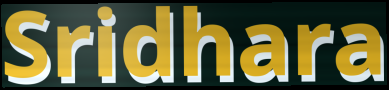
Sridhara